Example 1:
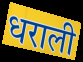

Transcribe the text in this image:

धराली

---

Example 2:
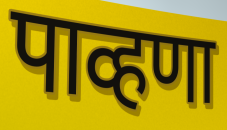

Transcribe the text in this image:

पाव्हणा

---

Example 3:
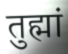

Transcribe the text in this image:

तुह्मां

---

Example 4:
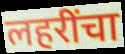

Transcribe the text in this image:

लहरींचा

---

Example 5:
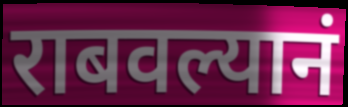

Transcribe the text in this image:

राबवल्यानं